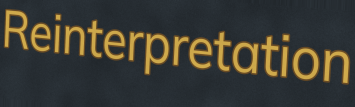
Reinterpretation